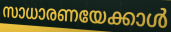
സാധാരണയേക്കാൾ